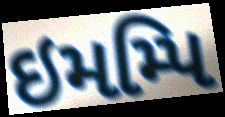
ઇમમ્પિ